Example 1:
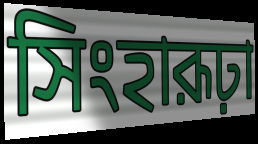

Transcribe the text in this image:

সিংহারূঢ়া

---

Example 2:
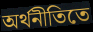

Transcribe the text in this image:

অর্থনীতিতে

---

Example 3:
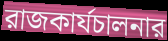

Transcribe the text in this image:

রাজকার্যচালনার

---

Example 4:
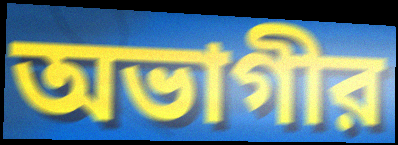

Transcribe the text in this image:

অভাগীর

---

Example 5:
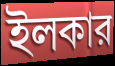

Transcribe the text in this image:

ইলকার